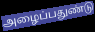
அழைப்பதுண்டு